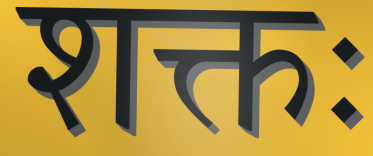
शक्तः